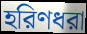
হরিণধরা